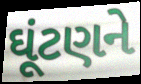
ઘૂંટણને